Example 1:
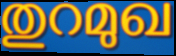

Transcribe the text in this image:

തുറമുഖ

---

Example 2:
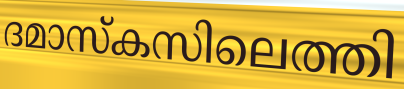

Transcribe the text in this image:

ദമാസ്കസിലെത്തി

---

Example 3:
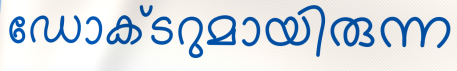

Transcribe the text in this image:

ഡോക്ടറുമായിരുന്ന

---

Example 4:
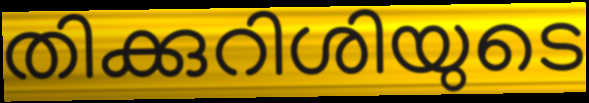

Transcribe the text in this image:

തിക്കുറിശിയുടെ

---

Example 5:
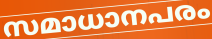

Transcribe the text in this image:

സമാധാനപരം